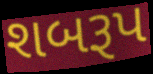
શબરૂપ